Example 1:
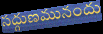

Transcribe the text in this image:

సద్గుణమునందు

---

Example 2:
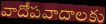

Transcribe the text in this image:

వాదోపవాదాలకు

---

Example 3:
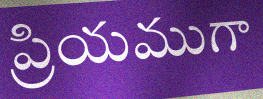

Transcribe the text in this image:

ప్రియముగా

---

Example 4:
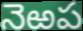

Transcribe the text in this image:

నెఱప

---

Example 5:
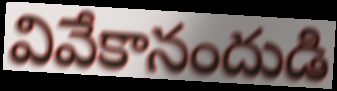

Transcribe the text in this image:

వివేకానందుడి